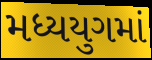
મધ્યયુગમાં